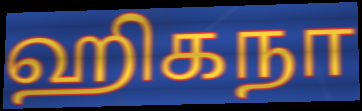
ஹிகநா